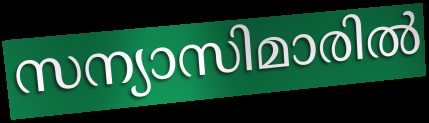
സന്യാസിമാരിൽ